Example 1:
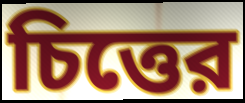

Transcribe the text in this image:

চিত্তের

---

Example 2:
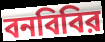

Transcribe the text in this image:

বনবিবির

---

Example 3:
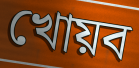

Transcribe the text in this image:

খোয়ব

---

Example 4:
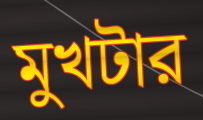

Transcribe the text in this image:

মুখটার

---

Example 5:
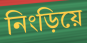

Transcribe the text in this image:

নিংড়িয়ে